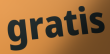
gratis